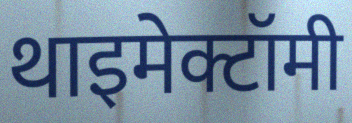
थाइमेक्टॉमी